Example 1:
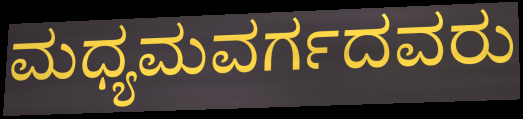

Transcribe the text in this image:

ಮಧ್ಯಮವರ್ಗದವರು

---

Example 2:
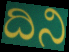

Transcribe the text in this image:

ದಿನಿ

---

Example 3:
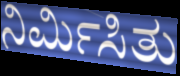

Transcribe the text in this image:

ನಿರ್ಮಿಸಿತು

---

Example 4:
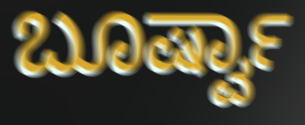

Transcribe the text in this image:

ಬೂರ್ಷ್ವಾ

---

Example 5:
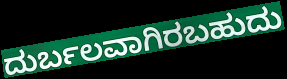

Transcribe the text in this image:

ದುರ್ಬಲವಾಗಿರಬಹುದು